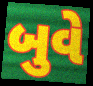
બુવે